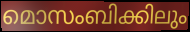
മൊസംബിക്കിലും